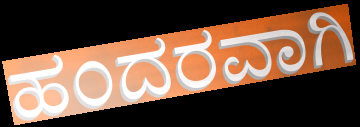
ಹಂದರವಾಗಿ